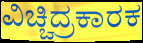
ವಿಚ್ಚಿದ್ರಕಾರಕ